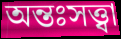
অন্তঃসত্ত্বা